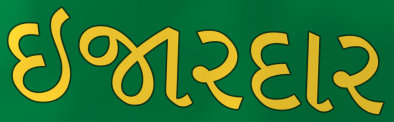
ઇજારદાર